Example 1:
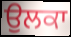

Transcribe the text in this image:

ਉਲਕਾ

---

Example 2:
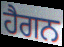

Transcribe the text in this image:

ਹੈਗਨ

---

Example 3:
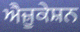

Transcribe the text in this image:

ਐਜ਼ੂਕੇਸ਼ਨ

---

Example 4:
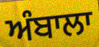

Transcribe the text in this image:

ਅੰਬਾਲਾ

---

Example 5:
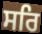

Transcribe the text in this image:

ਸਰਿ